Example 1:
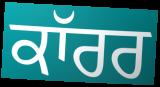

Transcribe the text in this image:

ਕਾੱਰਰ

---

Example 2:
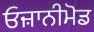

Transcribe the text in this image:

ਓਜ਼ਾਨੀਮੋਡ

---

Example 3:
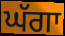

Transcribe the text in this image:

ਘੱਗਾ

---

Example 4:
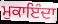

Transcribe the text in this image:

ਮੁਕਾਇੰਦਾ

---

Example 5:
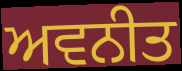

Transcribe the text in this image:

ਅਵਨੀਤ